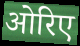
ओरिए